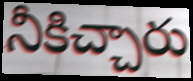
నీకిచ్చారు